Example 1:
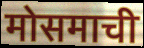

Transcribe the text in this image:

मोसमाची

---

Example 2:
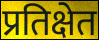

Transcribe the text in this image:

प्रतिक्षेत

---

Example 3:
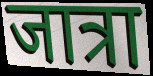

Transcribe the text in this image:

जात्रा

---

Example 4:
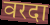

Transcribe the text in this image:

वरदा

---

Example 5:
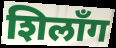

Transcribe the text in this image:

शिलाँग